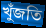
খুঁজতি